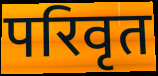
परिवृत